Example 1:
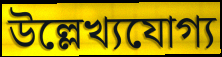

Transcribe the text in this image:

উল্লেখ্যযোগ্য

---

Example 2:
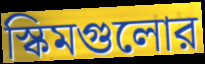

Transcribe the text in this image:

স্কিমগুলোর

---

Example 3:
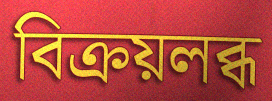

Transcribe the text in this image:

বিক্রয়লব্ধ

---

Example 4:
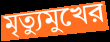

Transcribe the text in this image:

মৃত্যুমুখের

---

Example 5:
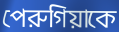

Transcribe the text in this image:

পেরুগিয়াকে